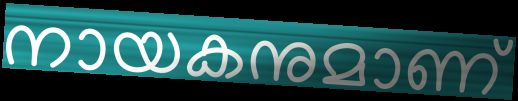
നായകനുമാണ്